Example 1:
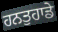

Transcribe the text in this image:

ਹਨਤੁਹਾਡੇ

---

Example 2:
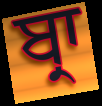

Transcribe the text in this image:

ਬ੍ਰਾ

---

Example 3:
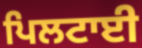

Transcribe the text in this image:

ਪਿਲਟਾਈ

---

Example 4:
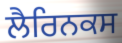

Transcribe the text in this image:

ਲੈਰਿਨਕਸ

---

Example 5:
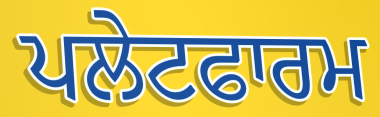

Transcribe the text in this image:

ਪਲੇਟਫਾਰਮ